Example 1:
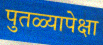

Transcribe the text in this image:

पुतळ्यापेक्षा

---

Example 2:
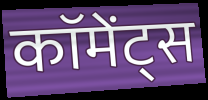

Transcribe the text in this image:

कॉमेंट्स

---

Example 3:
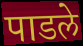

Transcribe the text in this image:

पाडले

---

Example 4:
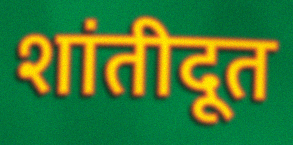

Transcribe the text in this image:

शांतीदूत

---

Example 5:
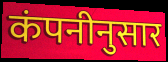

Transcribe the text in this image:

कंपनीनुसार